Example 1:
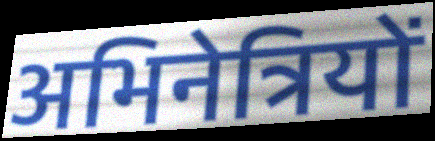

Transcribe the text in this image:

अभिनेत्रियों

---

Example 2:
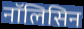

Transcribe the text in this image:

नॉलिसिन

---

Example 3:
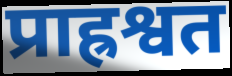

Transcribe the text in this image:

प्राह्रश्वत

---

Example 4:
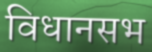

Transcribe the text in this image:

विधानसभ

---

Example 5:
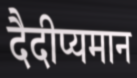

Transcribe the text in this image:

दैदीप्यमान